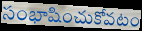
సంభాషించుకోవటం